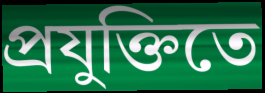
প্রযুক্তিতে